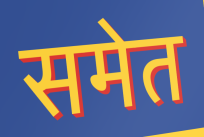
समेत